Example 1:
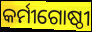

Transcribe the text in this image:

କର୍ମୀଗୋଷ୍ଠୀ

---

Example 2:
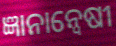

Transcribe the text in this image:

ଜ୍ଞାନାନ୍ୱେଷୀ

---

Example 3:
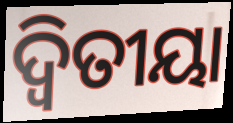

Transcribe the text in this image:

ଦ୍ଵିତୀୟା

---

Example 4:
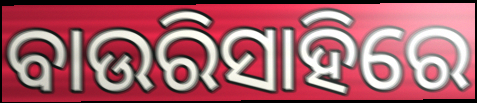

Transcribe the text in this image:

ବାଉରିସାହିରେ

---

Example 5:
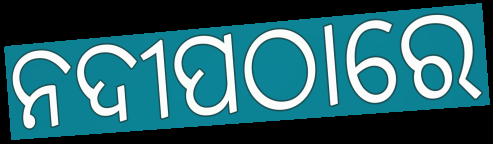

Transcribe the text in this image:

ନଦୀପଠାରେ